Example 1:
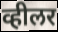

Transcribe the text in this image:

व्हीलर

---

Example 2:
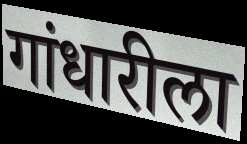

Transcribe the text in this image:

गांधारीला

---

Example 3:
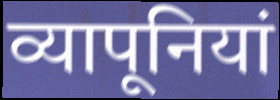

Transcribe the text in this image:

व्यापूनियां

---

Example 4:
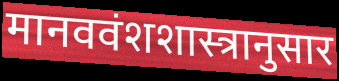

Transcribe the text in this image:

मानववंशशास्त्रानुसार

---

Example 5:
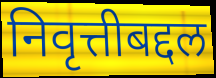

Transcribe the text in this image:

निवृत्तीबद्दल